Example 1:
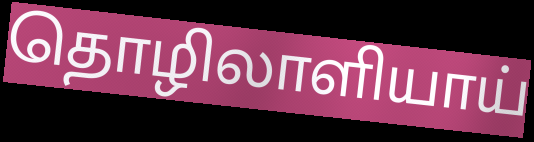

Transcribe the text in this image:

தொழிலாளியாய்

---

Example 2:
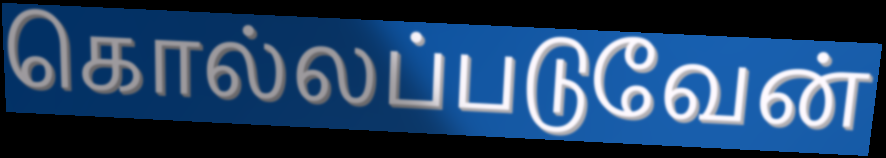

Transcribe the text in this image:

கொல்லப்படுவேன்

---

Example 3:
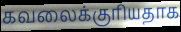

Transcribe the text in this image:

கவலைக்குரியதாக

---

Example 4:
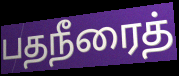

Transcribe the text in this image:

பதநீரைத்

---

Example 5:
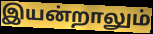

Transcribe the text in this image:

இயன்றாலும்